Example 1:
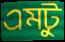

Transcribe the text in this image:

এমটু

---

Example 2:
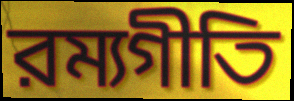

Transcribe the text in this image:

রম্যগীতি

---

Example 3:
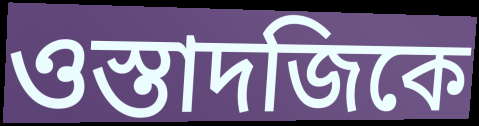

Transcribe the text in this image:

ওস্তাদজিকে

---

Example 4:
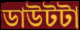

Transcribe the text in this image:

ডাউটটা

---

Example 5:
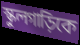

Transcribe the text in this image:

স্কুলগাড়িকে